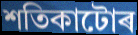
শতিকাটোৰ